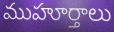
ముహూర్తాలు